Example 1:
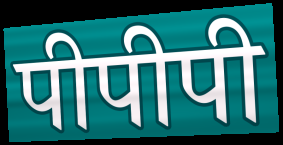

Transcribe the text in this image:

पीपीपी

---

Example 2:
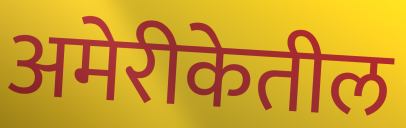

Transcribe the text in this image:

अमेरीकेतील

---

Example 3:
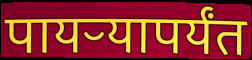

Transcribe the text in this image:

पायऱ्यापर्यंत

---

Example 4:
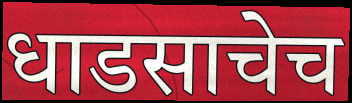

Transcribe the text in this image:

धाडसाचेच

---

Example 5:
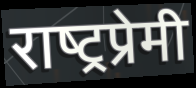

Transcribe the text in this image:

राष्ट्रप्रेमी